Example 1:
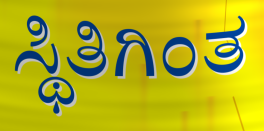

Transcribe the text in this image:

ಸ್ಥಿತಿಗಿಂತ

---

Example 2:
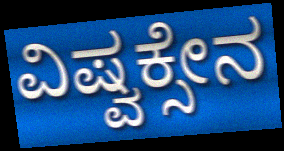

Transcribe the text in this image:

ವಿಷ್ವಕ್ಸೇನ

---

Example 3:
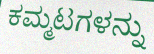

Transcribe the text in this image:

ಕಮ್ಮಟಗಳನ್ನು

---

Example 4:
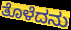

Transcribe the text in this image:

ತೊಳೆದನು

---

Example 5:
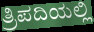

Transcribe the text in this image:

ತ್ರಿಪದಿಯಲ್ಲಿ